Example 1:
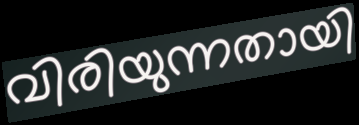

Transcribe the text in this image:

വിരിയുന്നതായി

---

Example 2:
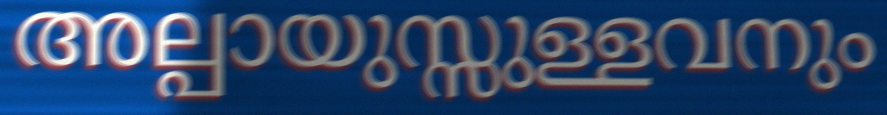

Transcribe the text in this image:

അല്പായുസ്സുള്ളവനും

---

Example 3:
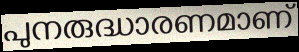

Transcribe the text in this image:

പുനരുദ്ധാരണമാണ്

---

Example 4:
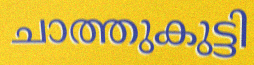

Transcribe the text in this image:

ചാത്തുകുട്ടി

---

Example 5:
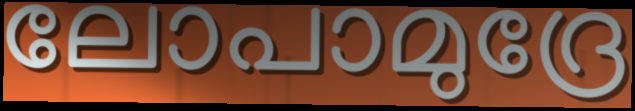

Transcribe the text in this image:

ലോപാമുദ്രേ